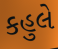
કહુલે